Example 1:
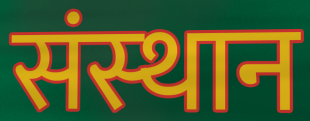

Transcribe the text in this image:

संस्‍थान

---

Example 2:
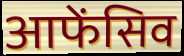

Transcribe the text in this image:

आफेंसिव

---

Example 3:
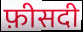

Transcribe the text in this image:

फ़ीसदी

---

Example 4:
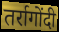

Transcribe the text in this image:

तर्रागोंदी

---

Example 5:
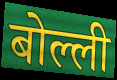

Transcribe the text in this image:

बोल्ली